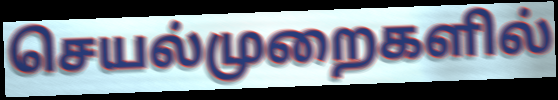
செயல்முறைகளில்